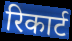
रिकार्ट